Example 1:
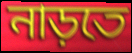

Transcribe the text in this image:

নাড়তে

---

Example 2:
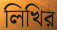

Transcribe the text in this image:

লিখির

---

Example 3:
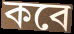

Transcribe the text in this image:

কবে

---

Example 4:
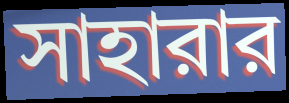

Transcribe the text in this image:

সাহারার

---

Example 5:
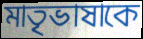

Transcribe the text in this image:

মাতৃভাষাকে